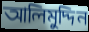
আলিমুদ্দিন